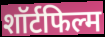
शॉर्टफिल्म